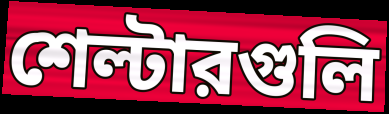
শেল্টারগুলি